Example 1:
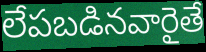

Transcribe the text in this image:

లేపబడినవారైతే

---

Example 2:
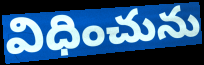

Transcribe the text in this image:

విధించును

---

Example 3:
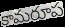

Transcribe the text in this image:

కామరూప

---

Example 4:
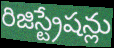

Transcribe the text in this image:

రిజిస్ట్రేషన్లు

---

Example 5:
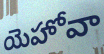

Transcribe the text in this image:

యెహోవా